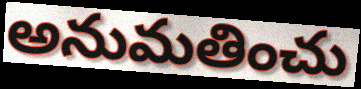
అనుమతించు